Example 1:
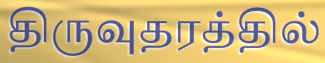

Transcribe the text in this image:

திருவுதரத்தில்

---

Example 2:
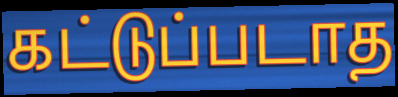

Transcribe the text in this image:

கட்டுப்படாத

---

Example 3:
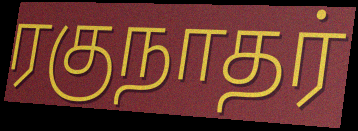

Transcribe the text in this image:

ரகுநாதர்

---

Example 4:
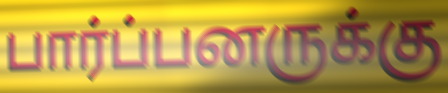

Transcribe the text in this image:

பார்ப்பனருக்கு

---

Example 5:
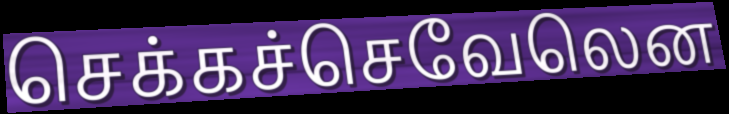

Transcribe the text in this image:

செக்கச்செவேலென